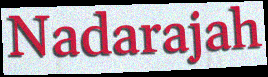
Nadarajah